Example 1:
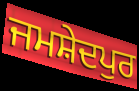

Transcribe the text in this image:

ਜਮਸ਼ੇਦਪੁਰ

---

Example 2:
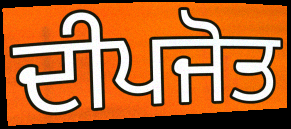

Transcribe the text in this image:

ਦੀਪਜੋਤ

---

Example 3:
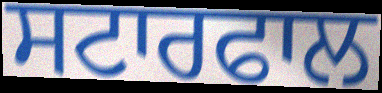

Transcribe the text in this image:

ਸਟਾਰਫਾਲ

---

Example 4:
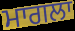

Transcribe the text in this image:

ਮਾਗਲਾ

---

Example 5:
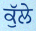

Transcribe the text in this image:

ਕੁੱਲੇ